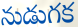
నుడుగక